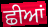
ਛੀਆਂ